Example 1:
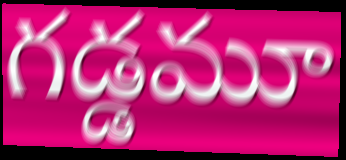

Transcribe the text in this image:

గడ్డమూ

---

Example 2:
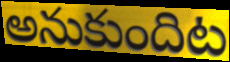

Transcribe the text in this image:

అనుకుందిట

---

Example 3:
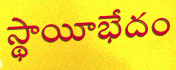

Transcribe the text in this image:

స్థాయీభేదం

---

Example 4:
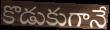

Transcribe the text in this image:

కొడుకుగానే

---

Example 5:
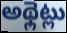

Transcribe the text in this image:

అథ్లెట్లు